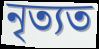
নৃত্যত